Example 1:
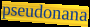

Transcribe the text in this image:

pseudonana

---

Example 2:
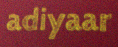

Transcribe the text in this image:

adiyaar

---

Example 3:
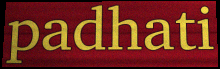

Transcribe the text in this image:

padhati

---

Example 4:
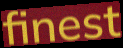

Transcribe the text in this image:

finest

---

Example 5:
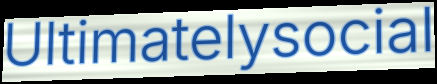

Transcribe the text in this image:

Ultimatelysocial